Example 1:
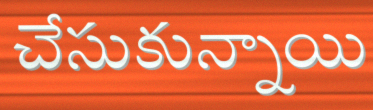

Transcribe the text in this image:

చేసుకున్నాయి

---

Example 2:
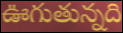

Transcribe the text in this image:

ఊగుతున్నది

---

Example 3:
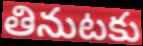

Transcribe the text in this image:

తినుటకు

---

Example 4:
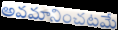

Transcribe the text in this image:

అవమానించటమే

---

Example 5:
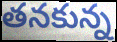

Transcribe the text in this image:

తనకున్న